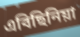
এবিছিনিয়া